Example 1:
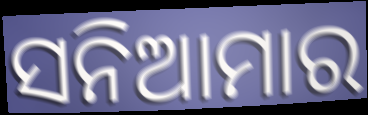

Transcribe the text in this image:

ସନିଆମାର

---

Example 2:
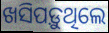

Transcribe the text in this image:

ଖସିପଡ଼ୁଥିଲେ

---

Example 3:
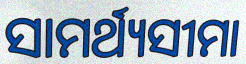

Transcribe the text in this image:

ସାମର୍ଥ୍ୟସୀମା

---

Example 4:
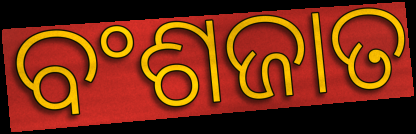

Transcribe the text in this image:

ବଂଶଜାତ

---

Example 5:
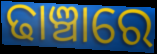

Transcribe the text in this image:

ଢାଞ୍ଚାରେ